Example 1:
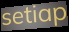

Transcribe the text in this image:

setiap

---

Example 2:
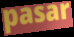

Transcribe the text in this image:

pasar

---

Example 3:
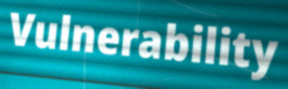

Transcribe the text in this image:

Vulnerability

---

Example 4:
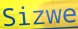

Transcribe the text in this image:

Sizwe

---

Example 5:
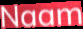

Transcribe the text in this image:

Naam